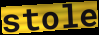
stole